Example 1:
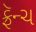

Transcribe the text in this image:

ફ્રૅન્ચ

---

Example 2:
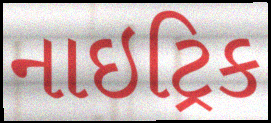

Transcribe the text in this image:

નાઇટ્રિક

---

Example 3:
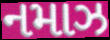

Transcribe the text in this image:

નમાઝ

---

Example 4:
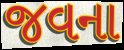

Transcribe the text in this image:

જવના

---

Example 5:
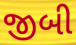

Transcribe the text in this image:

જીબી